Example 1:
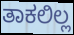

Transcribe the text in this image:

ತಾಕಲಿಲ್ಲ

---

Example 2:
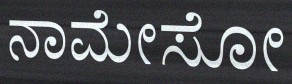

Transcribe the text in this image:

ನಾಮೇಸೋ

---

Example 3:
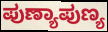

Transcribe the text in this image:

ಪುಣ್ಯಾಪುಣ್ಯ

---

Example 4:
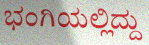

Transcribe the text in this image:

ಭಂಗಿಯಲ್ಲಿದ್ದು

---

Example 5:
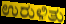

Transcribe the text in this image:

ಉರುಳಿತು